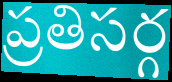
ప్రతిసర్గ